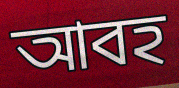
আবহ